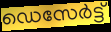
ഡെസേർട്ട്